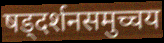
षड्दर्शनसमुच्चय